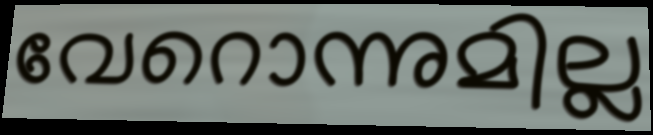
വേറൊന്നുമില്ല